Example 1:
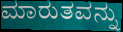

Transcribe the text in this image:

ಮಾರುತವನ್ನು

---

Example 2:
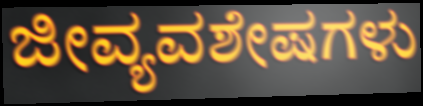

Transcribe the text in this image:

ಜೀವ್ಯವಶೇಷಗಳು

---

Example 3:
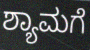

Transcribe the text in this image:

ಶ್ಯಾಮಗೆ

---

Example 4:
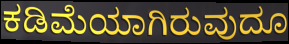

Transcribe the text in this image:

ಕಡಿಮೆಯಾಗಿರುವುದೂ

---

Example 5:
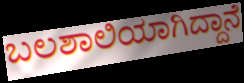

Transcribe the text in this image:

ಬಲಶಾಲಿಯಾಗಿದ್ದಾನೆ